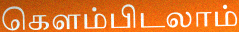
கெளம்பிடலாம்